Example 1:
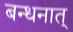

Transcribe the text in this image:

बन्धनात्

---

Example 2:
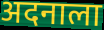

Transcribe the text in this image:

अदनाला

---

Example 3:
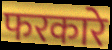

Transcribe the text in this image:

फरकारे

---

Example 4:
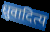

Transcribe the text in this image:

ध्रुवादित्य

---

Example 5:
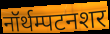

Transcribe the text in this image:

नॉर्थम्पटनशर